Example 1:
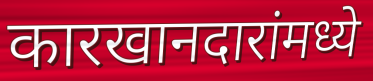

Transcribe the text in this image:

कारखानदारांमध्ये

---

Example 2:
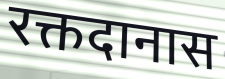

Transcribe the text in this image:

रक्तदानास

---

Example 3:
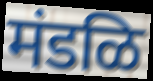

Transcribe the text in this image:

मंडळि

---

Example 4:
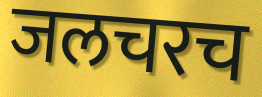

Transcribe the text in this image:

जलचरच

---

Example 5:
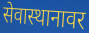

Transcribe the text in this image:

सेवास्थानावर